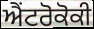
ਐਂਟਰੋਕੋਕੀ